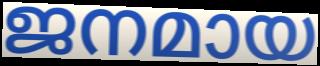
ജനമായ